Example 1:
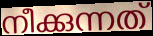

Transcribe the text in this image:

നീക്കുന്നത്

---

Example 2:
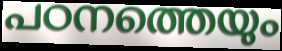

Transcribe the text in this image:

പഠനത്തെയും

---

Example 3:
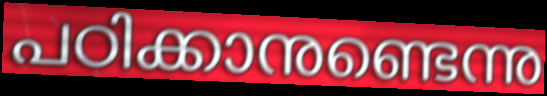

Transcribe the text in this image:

പഠിക്കാനുണ്ടെന്നു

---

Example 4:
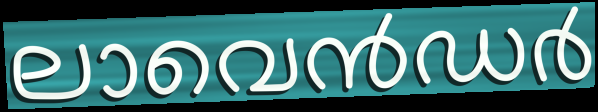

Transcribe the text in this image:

ലാവെൻഡർ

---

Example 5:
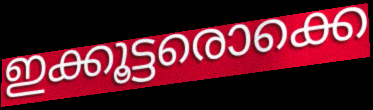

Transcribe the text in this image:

ഇക്കൂട്ടരൊക്കെ